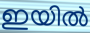
ഇയിൽ